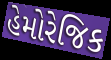
હેમોરેજિક